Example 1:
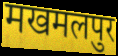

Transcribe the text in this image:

मखमलपुर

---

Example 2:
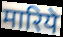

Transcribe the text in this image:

मारिये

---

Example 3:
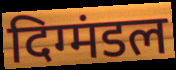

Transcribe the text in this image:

दिग्मंडल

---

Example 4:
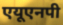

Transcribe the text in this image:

एयूएनपी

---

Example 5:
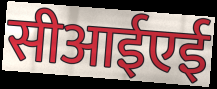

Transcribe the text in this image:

सीआईएई